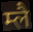
म्लै